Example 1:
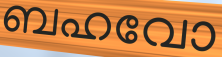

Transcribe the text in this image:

ബഹവോ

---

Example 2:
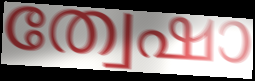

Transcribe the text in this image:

ത്വേഷാ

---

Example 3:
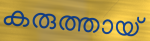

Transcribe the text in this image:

കരുത്തായ്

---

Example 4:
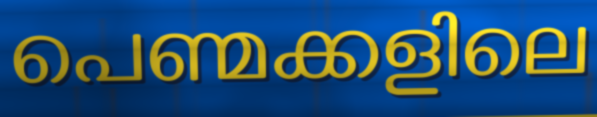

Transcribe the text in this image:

പെണ്മക്കളിലെ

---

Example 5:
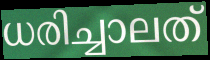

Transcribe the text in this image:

ധരിച്ചാലത്